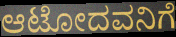
ಆಟೋದವನಿಗೆ